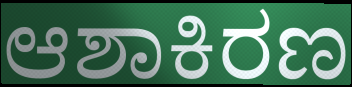
ಆಶಾಕಿರಣ